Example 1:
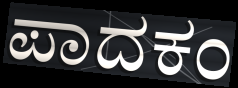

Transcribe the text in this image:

ಪಾದಕಂ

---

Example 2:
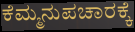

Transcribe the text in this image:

ಕೆಮ್ಮನುಪಚಾರಕ್ಕೆ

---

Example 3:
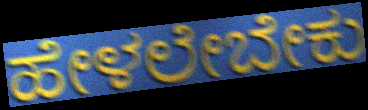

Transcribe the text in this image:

ಹೇಳಲೇಬೇಕು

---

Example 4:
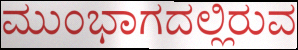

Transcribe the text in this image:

ಮುಂಭಾಗದಲ್ಲಿರುವ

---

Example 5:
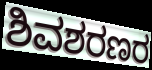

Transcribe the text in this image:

ಶಿವಶರಣರ